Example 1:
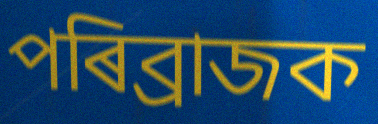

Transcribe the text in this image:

পৰিব্ৰাজক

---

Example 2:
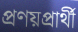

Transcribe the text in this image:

প্ৰণয়প্ৰাৰ্থী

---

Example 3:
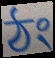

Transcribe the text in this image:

ঠং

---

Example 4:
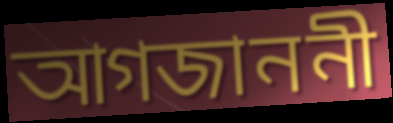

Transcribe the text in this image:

আগজাননী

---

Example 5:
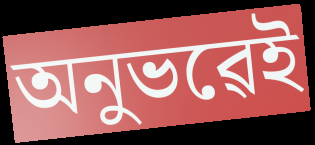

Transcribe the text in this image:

অনুভৱেই